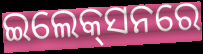
ଇଲେକ୍‍ସନରେ